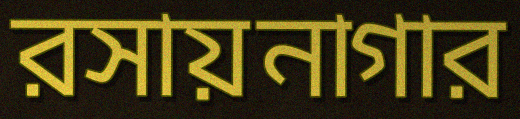
রসায়নাগার